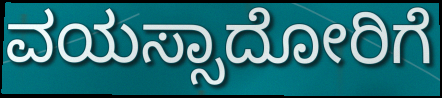
ವಯಸ್ಸಾದೋರಿಗೆ